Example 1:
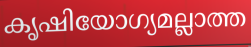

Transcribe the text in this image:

കൃഷിയോഗ്യമല്ലാത്ത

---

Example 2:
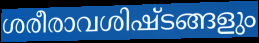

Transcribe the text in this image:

ശരീരാവശിഷ്ടങ്ങളും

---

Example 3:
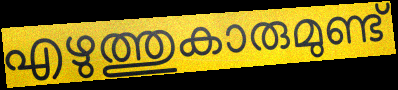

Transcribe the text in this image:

എഴുത്തുകാരുമുണ്ട്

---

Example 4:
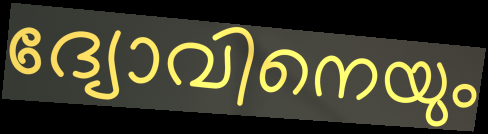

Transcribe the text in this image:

ദ്യോവിനെയും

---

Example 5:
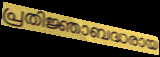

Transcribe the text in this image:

പ്രതിജ്ഞാബദ്ധരായ